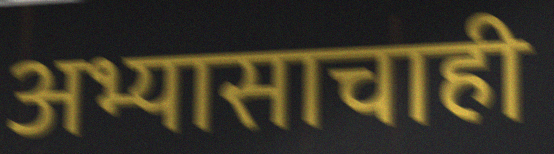
अभ्यासाचाही